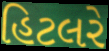
હિટલરે